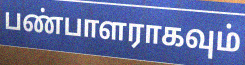
பண்பாளராகவும்